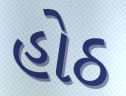
હોઠ